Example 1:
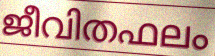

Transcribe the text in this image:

ജീവിതഫലം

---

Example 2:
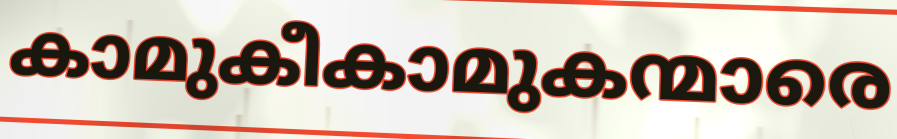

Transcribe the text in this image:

കാമുകീകാമുകന്മാരെ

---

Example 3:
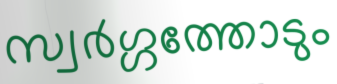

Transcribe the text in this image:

സ്വർഗ്ഗത്തോടും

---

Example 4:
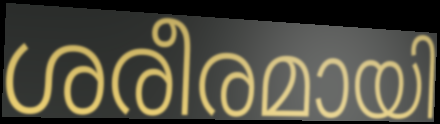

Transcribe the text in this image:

ശരീരമായി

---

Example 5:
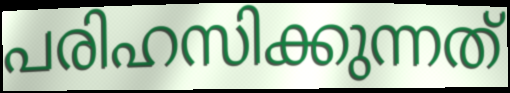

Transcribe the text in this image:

പരിഹസിക്കുന്നത്